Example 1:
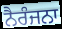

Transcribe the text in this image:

ਨੈਰੰਜਨਾ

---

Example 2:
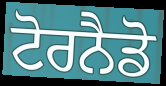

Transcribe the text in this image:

ਟੋਰਨੈਡੋ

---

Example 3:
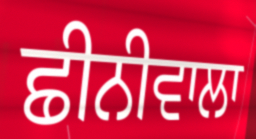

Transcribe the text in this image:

ਛੀਨੀਵਾਲਾ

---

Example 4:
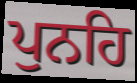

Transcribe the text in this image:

ਪੁਨਹਿ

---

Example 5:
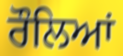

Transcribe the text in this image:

ਰੌਲਿਆਂ